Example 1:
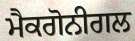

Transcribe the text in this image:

ਮੈਕਗੋਨੀਗਲ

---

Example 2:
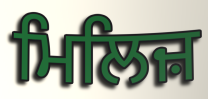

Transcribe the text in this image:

ਮਿਲਿਜ਼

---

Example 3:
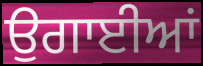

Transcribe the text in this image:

ਉਗਾਈਆਂ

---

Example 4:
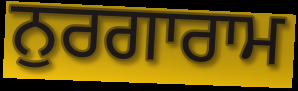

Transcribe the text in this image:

ਨੁਰਗਾਰਾਮ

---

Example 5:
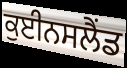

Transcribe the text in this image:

ਕੁਈਨਸਲੈਂਡ